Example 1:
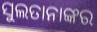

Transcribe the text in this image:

ସୁଲତାନାଙ୍କର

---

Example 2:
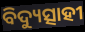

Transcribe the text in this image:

ବିଦ୍ୟୁତ୍ସାହୀ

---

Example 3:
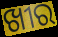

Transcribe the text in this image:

ଖୀର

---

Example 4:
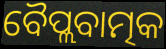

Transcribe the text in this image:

ବୈପ୍ଲବାତ୍ମକ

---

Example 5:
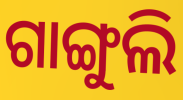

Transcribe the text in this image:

ଗାଙ୍ଗୁଲି